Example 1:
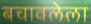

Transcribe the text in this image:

बचावलेला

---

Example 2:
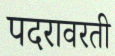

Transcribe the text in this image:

पदरावरती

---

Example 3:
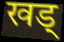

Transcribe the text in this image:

खड्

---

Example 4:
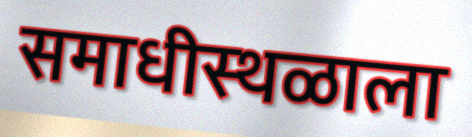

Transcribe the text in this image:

समाधीस्थळाला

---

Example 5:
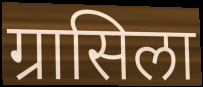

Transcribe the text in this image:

ग्रासिला